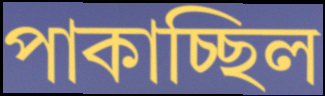
পাকাচ্ছিল